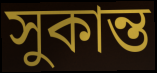
সুকান্ত